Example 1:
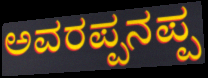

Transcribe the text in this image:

ಅವರಪ್ಪನಪ್ಪ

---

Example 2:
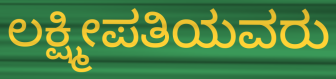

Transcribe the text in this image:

ಲಕ್ಷ್ಮೀಪತಿಯವರು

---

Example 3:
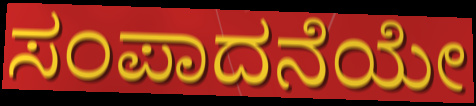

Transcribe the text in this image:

ಸಂಪಾದನೆಯೇ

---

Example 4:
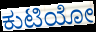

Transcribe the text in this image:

ಕುಟಿಯೋ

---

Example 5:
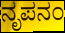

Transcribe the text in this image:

ನೃಪನಂ